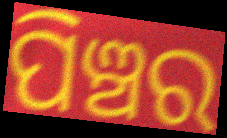
ପିଞ୍ଚର